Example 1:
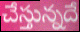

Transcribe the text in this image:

చేస్తున్నదే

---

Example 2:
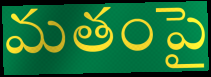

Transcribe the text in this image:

మతంపై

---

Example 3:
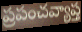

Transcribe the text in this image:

ప్రపంచవ్యాప్త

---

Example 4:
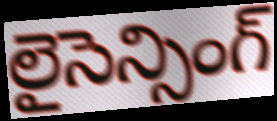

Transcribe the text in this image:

లైసెన్సింగ్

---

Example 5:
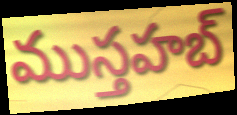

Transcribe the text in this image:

ముస్తహబ్